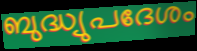
ബുദ്ധ്യുപദേശം